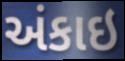
અંકાઇ